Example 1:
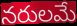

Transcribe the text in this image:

నరులమే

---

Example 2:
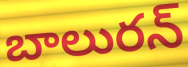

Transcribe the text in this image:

బాలురన్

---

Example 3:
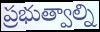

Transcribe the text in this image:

ప్రభుత్వాల్ని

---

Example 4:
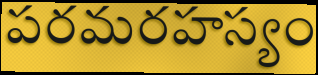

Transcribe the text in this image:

పరమరహస్యం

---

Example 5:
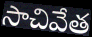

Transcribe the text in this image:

సాచివేత